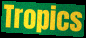
Tropics